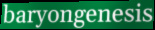
baryongenesis